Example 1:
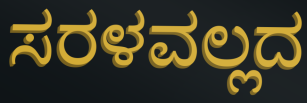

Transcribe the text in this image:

ಸರಳವಲ್ಲದ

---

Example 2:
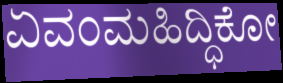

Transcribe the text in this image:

ಏವಂಮಹಿದ್ಧಿಕೋ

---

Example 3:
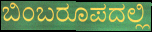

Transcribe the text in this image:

ಬಿಂಬರೂಪದಲ್ಲಿ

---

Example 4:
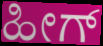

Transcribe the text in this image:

ಹೀಗ್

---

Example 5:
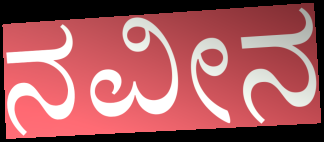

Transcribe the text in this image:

ನವೀನ